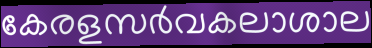
കേരളസർവകലാശാല